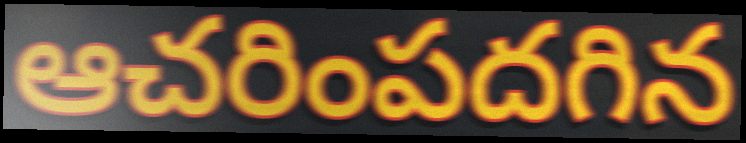
ఆచరింపదగిన